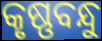
କୃଷ୍ଣବନ୍ଧୁ